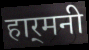
हार्मनी